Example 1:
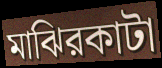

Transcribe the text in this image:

মাঝিরকাটা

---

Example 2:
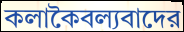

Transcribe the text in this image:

কলাকৈবল্যবাদের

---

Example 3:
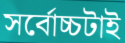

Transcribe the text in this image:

সর্বোচ্চটাই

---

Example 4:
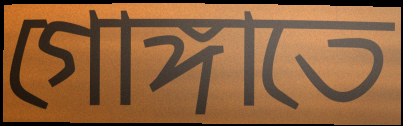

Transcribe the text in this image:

গোঙ্গাতে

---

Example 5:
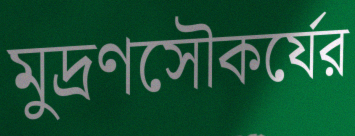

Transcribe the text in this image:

মুদ্রণসৌকর্যের